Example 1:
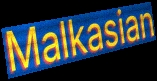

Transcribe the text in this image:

Malkasian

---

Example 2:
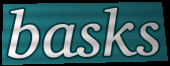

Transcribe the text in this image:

basks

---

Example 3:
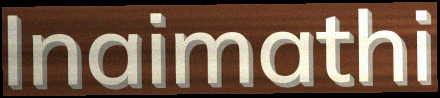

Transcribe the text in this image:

Inaimathi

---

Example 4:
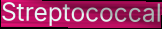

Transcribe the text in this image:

Streptococcal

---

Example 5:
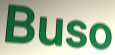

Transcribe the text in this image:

Buso